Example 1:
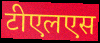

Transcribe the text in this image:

टीएलएस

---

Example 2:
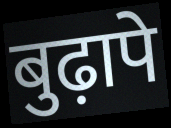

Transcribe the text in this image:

बुढ़ापे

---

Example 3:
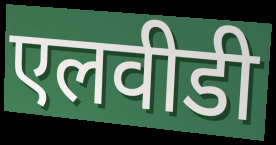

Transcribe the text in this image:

एलवीडी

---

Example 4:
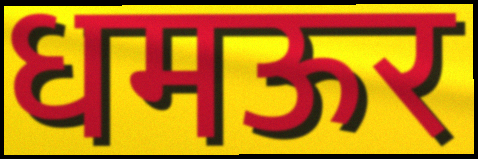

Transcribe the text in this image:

धमऊर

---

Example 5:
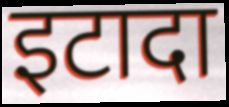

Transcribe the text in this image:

इटादा